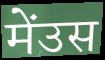
मेंउस